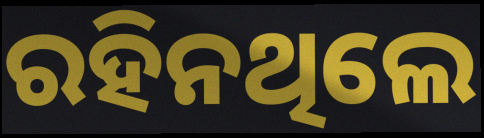
ରହିନଥିଲେ